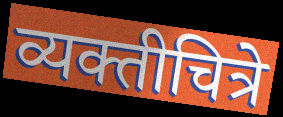
व्यक्तीचित्रे